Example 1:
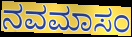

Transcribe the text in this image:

ನವಮಾಸಂ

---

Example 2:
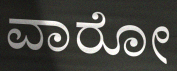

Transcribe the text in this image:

ವಾರೋ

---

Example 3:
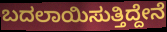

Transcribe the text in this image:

ಬದಲಾಯಿಸುತ್ತಿದ್ದೇನೆ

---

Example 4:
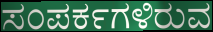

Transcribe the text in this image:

ಸಂಪರ್ಕಗಳಿರುವ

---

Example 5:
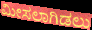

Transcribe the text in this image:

ಮೀಸಲಾಗಿಡಲು